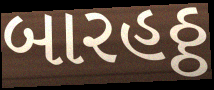
બારહઠ્ઠ